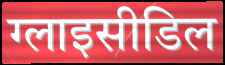
ग्लाइसीडिल